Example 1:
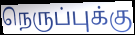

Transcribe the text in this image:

நெருப்புக்கு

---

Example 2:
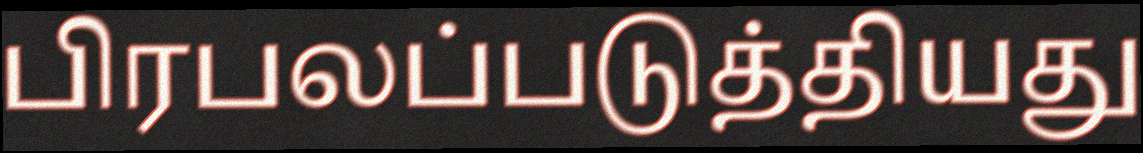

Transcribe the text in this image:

பிரபலப்படுத்தியது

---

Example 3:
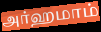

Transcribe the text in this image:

அர்ஹமாம்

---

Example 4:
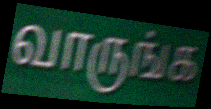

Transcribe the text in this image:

வாருங்க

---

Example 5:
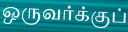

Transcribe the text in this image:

ஒருவர்க்குப்